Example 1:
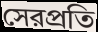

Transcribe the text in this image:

সেরপ্রতি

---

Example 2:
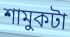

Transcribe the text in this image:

শামুকটা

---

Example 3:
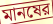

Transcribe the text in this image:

মানষের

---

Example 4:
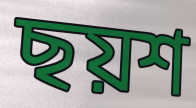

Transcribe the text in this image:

ছয়শ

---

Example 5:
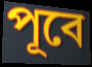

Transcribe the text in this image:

পূবে